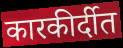
कारकीर्दीत